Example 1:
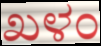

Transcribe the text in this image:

ಖಳಂ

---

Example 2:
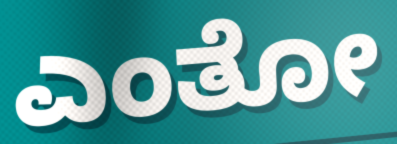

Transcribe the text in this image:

ಎಂತೋ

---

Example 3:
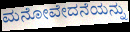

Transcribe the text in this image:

ಮನೋವೇದನೆಯನ್ನು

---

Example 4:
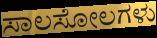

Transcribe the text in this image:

ಸಾಲಸೋಲಗಳು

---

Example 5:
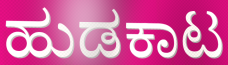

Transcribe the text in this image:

ಹುಡಕಾಟ